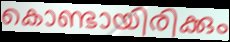
കൊണ്ടായിരിക്കും